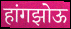
हांगझोऊ